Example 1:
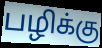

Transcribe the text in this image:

பழிக்கு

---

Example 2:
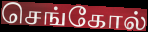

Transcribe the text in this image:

செங்கோல்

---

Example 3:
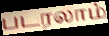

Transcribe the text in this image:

படரலாம்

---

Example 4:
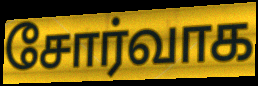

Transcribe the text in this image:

சோர்வாக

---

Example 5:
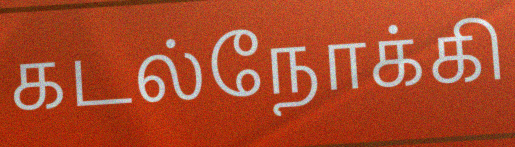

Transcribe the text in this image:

கடல்நோக்கி